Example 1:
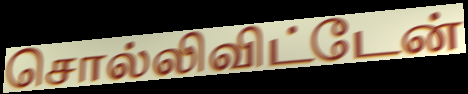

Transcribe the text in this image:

சொல்லிவிட்டேன்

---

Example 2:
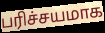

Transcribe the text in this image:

பரிச்சயமாக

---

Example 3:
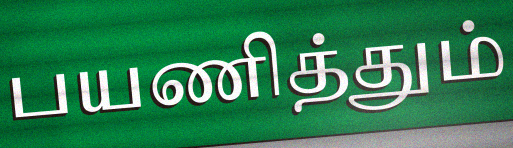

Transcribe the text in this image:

பயணித்தும்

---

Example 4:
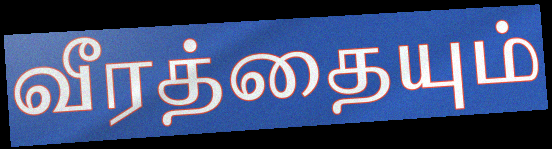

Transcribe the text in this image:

வீரத்தையும்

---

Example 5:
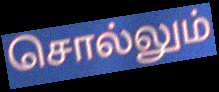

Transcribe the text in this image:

சொல்லும்